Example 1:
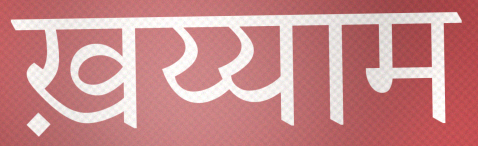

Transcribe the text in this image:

ख़य्याम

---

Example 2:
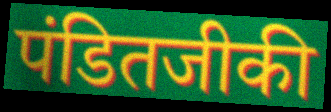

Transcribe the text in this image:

पंडितजीकी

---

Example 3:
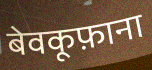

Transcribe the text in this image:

बेवकूफ़ाना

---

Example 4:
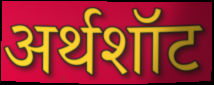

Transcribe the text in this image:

अर्थशॉट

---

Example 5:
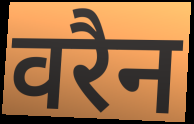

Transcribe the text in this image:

वरैन